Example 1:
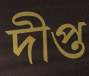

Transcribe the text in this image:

দীপ্ত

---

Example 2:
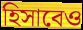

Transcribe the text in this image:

হিসাবেও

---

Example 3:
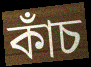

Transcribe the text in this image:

কাঁচ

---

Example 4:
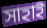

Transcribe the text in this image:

সাহাই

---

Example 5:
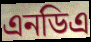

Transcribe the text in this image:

এনডিএ